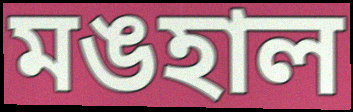
মঙহাল